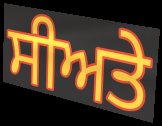
ਸੀਅਤੇ